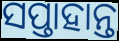
ସପ୍ତାହାନ୍ତ